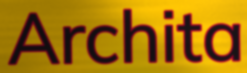
Archita